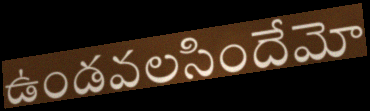
ఉండవలసిందేమో